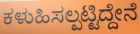
ಕಳುಹಿಸಲ್ಪಟ್ಟಿದ್ದೇನೆ